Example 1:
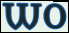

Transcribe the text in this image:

wo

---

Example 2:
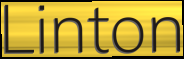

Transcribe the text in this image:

Linton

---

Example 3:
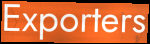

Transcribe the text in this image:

Exporters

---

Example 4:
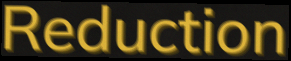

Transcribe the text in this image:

Reduction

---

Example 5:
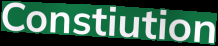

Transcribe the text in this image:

Constiution